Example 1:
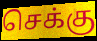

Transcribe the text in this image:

செக்கு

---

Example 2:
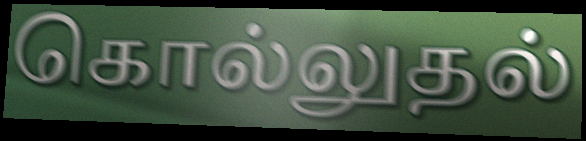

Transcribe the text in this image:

கொல்லுதல்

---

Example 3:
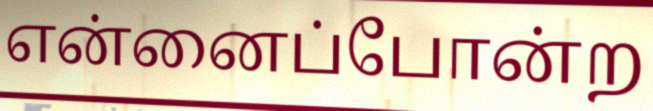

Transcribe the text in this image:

என்னைப்போன்ற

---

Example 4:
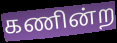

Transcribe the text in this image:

கணின்ற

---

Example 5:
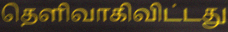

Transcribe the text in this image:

தெளிவாகிவிட்டது